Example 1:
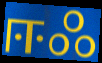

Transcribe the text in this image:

ஈஃ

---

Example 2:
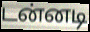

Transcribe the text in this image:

டன்னடி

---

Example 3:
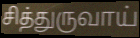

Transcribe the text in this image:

சித்துருவாய்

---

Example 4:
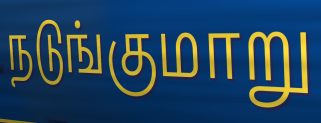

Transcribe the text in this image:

நடுங்குமாறு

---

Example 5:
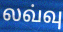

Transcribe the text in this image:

லவ்வு